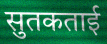
सुतकताई